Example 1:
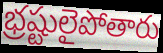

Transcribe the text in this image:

భ్రష్టులైపోతారు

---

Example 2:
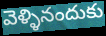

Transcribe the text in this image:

వెళ్ళినందుకు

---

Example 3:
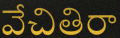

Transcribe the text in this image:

వేచితిరా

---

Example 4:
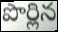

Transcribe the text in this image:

పొర్లిన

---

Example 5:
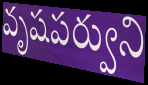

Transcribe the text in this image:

వృషపర్వుని